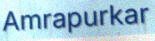
Amrapurkar